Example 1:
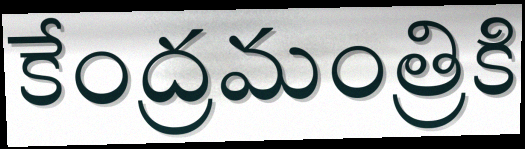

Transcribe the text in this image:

కేంద్రమంత్రికి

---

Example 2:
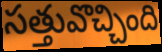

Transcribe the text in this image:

సత్తువొచ్చింది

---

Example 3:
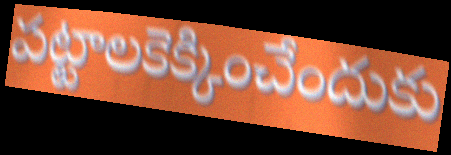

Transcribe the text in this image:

పట్టాలకెక్కించేందుకు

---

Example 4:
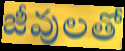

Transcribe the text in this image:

జీవులతో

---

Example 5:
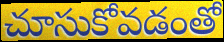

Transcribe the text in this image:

చూసుకోవడంతో